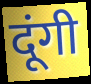
दूंगी